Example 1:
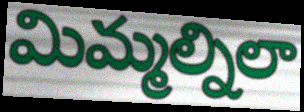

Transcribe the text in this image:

మిమ్మల్నిలా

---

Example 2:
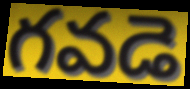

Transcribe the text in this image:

గవడె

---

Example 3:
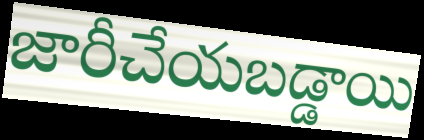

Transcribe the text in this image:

జారీచేయబడ్డాయి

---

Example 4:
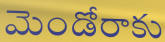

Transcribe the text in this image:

మెండోరాకు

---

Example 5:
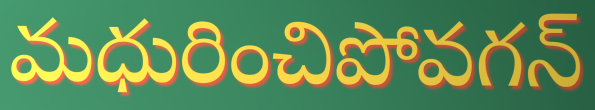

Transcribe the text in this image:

మధురించిపోవగన్